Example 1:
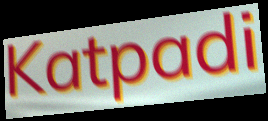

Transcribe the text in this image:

Katpadi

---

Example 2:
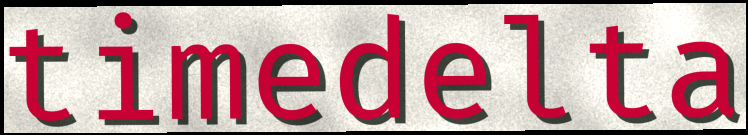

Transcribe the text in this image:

timedelta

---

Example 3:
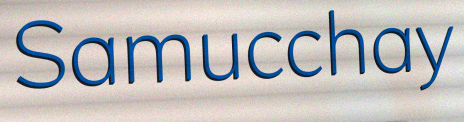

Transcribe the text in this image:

Samucchay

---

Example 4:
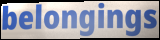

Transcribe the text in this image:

belongings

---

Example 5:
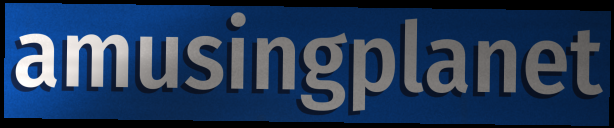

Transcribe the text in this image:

amusingplanet